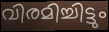
വിരമിച്ചിട്ടും